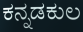
ಕನ್ನಡಕುಲ